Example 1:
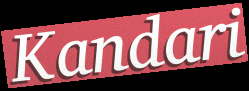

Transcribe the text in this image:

Kandari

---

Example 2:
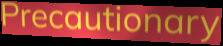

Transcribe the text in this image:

Precautionary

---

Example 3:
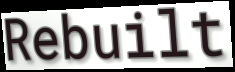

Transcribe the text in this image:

Rebuilt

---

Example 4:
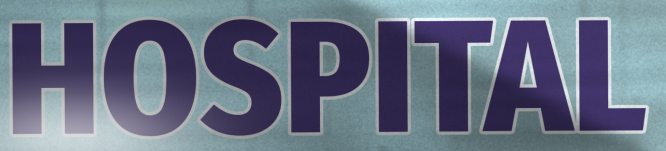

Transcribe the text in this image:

HOSPITAL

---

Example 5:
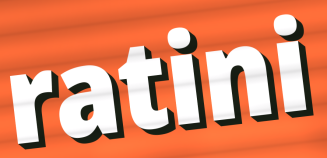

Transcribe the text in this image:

ratini